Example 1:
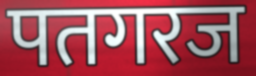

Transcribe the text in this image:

पतगरज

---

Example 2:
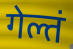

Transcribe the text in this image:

गेल्तं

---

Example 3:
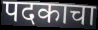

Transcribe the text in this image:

पदकाचा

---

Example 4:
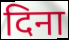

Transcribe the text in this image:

दिना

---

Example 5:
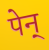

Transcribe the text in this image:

पेन्